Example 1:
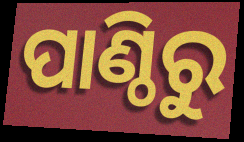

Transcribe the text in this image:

ପାଣ୍ଠିରୁ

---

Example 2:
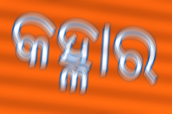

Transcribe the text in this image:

କହ୍ଳାର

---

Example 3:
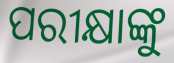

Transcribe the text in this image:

ପରୀକ୍ଷାଙ୍କୁ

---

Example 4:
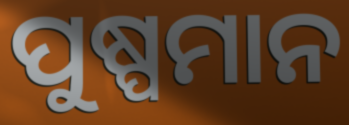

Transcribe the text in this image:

ପୁଷ୍ପମାନ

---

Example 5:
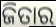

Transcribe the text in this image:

ଜିତାର